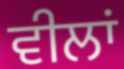
ਵੀਲਾਂ